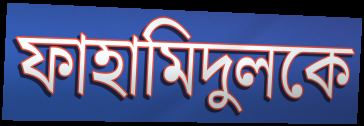
ফাহামিদুলকে